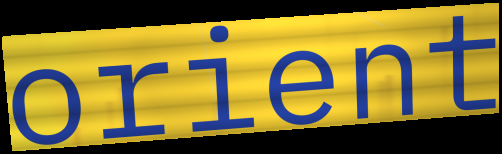
orient